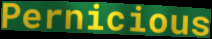
Pernicious